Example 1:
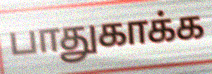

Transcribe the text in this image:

பாதுகாக்க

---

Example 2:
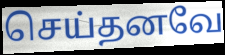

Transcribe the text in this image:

செய்தனவே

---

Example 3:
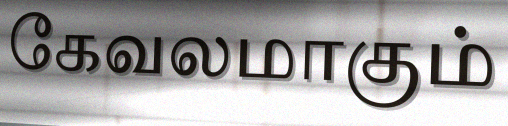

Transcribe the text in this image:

கேவலமாகும்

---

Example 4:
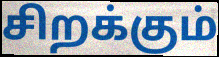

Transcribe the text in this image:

சிறக்கும்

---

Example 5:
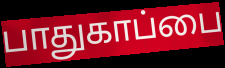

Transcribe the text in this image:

பாதுகாப்பை